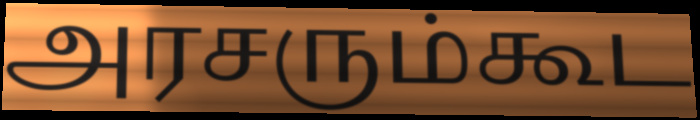
அரசரும்கூட